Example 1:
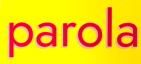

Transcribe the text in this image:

parola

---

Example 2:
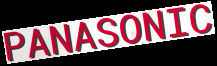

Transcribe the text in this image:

PANASONIC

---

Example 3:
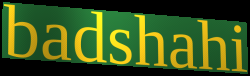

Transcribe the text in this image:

badshahi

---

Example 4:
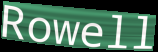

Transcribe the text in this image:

Rowell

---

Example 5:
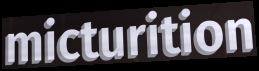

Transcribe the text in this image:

micturition